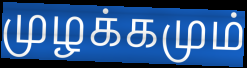
முழக்கமும்